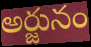
అర్జునం